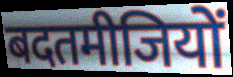
बदतमीजियों